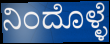
ನಿಂದೊಳ್ಳೆ